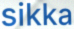
sikka